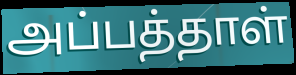
அப்பத்தாள்